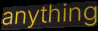
anything